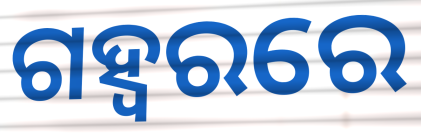
ଗହ୍ୱରରେ